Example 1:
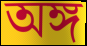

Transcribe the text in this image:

অঙ্গ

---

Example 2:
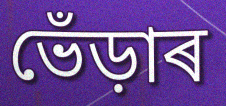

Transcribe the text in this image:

ভেঁড়াৰ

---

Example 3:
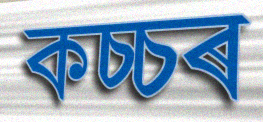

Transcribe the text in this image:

কচ্চৰ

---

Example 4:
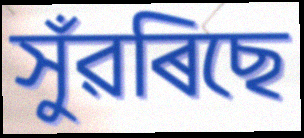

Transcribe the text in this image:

সুঁৱৰিছে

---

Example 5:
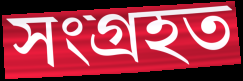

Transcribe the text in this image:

সংগ্ৰহত